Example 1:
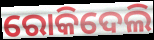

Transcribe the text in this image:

ରୋକିଦେଲି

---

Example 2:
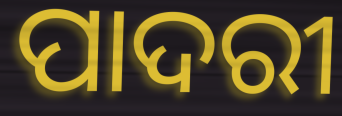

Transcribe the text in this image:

ପାଦରୀ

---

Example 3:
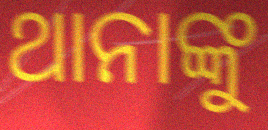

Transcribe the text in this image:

ଥାନାଙ୍କୁ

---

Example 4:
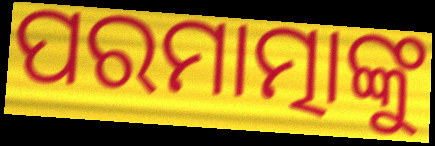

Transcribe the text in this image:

ପରମାତ୍ମାଙ୍କୁ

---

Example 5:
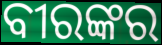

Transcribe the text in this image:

ବୀରଙ୍କର